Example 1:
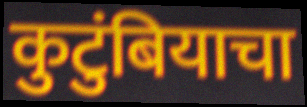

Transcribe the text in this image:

कुटुंबियाचा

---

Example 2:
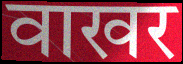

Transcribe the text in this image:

वाखर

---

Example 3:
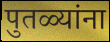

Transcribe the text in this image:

पुतळ्यांना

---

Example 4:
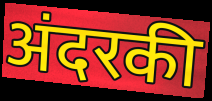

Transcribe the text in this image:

अंदरकी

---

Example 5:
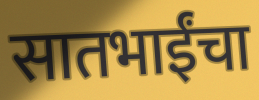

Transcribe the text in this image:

सातभाईंचा